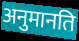
अनुमानति